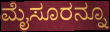
ಮೈಸೂರನ್ನೂ